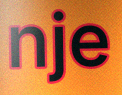
nje